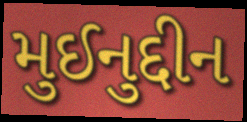
મુઈનુદ્દીન